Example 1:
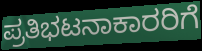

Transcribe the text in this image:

ಪ್ರತಿಭಟನಾಕಾರರಿಗೆ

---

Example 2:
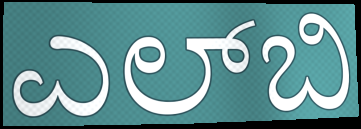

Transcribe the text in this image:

ಎಲ್‌ಬಿ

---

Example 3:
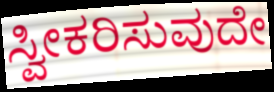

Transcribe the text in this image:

ಸ್ವೀಕರಿಸುವುದೇ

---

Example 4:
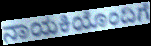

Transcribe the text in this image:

ನಾಯಕಿಯೊಂದಿಗೆ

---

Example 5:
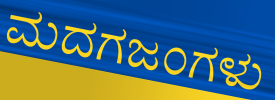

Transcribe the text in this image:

ಮದಗಜಂಗಳು